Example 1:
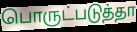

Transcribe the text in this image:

பொருட்படுத்தா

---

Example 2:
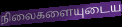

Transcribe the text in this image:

நிலைகளையுடைய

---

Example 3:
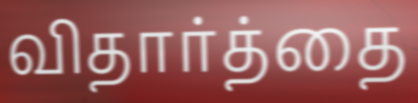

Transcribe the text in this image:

விதார்த்தை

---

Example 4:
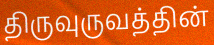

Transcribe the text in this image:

திருவுருவத்தின்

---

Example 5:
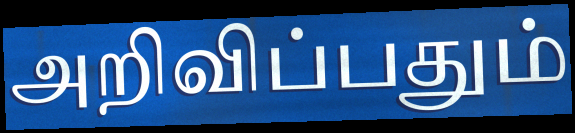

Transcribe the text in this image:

அறிவிப்பதும்